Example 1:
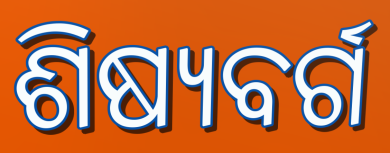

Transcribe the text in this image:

ଶିଷ୍ୟବର୍ଗ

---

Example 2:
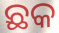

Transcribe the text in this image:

ଛକ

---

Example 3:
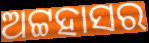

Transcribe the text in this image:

ଅଟ୍ଟହାସର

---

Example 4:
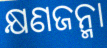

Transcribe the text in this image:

କ୍ଷଣଜନ୍ମା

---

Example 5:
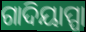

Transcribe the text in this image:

ଗାଦିୟାପ୍ପା